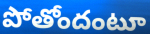
పోతోందంటూ